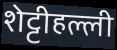
शेट्टीहल्ली